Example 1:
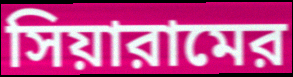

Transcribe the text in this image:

সিয়ারামের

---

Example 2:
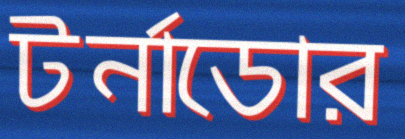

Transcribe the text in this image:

টর্নাডোর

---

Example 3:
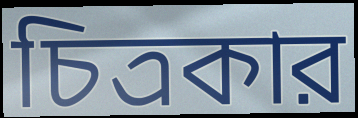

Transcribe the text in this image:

চিত্রকার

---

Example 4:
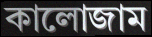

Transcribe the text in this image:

কালোজাম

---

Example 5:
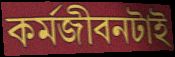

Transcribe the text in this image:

কর্মজীবনটাই